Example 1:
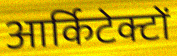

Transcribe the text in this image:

आर्किटेक्टों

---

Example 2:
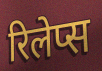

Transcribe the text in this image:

रिलेप्स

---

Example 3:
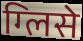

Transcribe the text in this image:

ग्लिसे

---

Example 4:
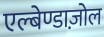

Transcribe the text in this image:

एल्बेण्डाज़ोल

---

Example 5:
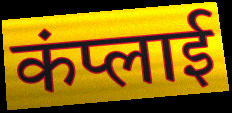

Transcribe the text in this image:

कंप्लाई